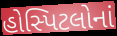
હોસ્પિટલોનાં